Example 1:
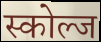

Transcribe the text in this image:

स्कोल्ज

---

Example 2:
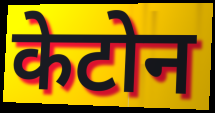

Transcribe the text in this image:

केटोन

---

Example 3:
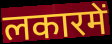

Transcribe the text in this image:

लकारमें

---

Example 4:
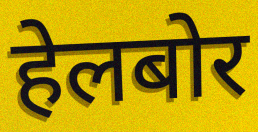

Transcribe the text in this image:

हेलबोर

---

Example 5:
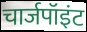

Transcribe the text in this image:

चार्जपॉइंट